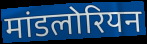
मांडलोरियन